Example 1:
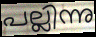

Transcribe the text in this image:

പല്ലിന്നു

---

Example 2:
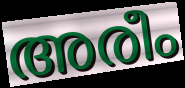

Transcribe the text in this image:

അരീം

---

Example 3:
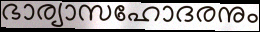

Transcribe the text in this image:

ഭാര്യാസഹോദരനും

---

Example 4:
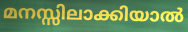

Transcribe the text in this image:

മനസ്സിലാക്കിയാൽ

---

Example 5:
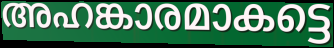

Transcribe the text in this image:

അഹങ്കാരമാകട്ടെ